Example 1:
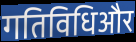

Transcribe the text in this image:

गतिविधिऔर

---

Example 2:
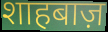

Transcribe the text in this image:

शाहबाज़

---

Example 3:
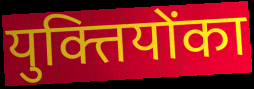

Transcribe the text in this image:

युक्तियोंका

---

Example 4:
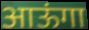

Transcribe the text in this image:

आऊंगा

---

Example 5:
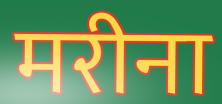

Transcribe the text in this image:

मरीना